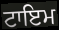
ਟਾਇਮ